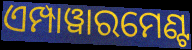
ଏମ୍ପାୱାରମେଣ୍ଟ